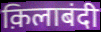
क़िलाबंदी